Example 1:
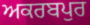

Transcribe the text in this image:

ਅਕਰਬਪੁਰ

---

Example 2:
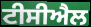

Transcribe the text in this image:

ਟੀਸੀਐਲ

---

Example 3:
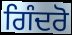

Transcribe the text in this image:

ਗਿੰਦਰੋ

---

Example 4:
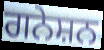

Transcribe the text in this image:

ਗਨੇਸ਼ਨ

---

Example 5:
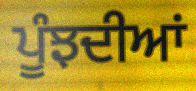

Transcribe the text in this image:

ਪੂੰਝਦੀਆਂ